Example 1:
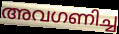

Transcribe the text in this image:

അവഗണിച്ച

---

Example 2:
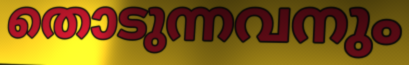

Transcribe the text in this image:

തൊടുന്നവനും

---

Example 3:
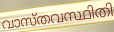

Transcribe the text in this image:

വാസ്തവസ്ഥിതി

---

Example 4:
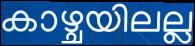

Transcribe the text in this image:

കാഴ്ചയിലല്ല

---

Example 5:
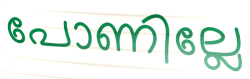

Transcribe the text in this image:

പോണില്ലേ